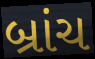
બ્રાંચ